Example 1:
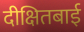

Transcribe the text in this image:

दीक्षितबाई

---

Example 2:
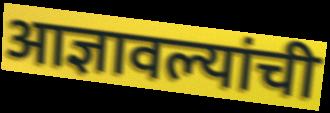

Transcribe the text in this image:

आज्ञावल्यांची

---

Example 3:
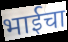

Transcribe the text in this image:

भाईचा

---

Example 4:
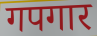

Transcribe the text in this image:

गपगार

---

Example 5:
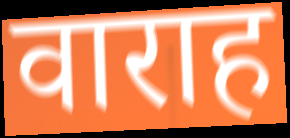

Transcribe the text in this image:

वाराह